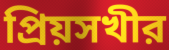
প্রিয়সখীর